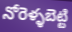
నోరెళ్ళబెట్టి